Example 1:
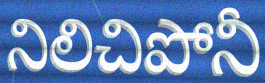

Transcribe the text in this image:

నిలిచిపోనీ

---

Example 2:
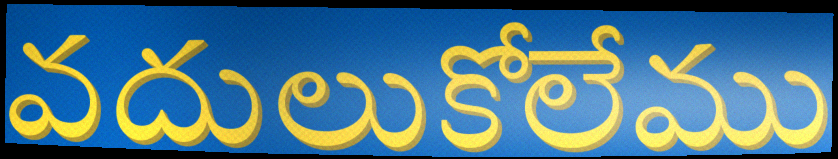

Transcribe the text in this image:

వదులుకోలేము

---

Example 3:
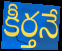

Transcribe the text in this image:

కీర్తనే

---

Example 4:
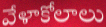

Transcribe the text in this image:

వేళాకోలాలు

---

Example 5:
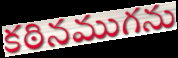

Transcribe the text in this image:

కఠినముగను